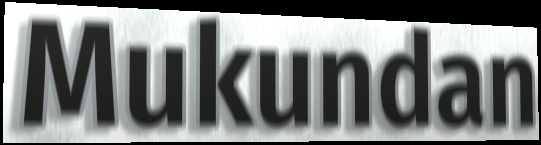
Mukundan